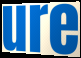
ure